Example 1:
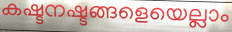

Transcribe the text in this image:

കഷ്ടനഷ്ടങ്ങളെയെല്ലാം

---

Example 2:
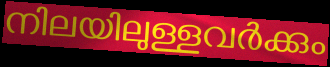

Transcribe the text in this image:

നിലയിലുള്ളവർക്കും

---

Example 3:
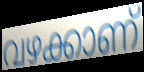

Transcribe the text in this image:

വഴക്കാണ്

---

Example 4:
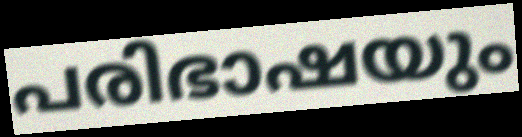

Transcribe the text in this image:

പരിഭാഷയും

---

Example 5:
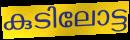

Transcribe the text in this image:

കുടിലോട്ട